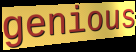
genious